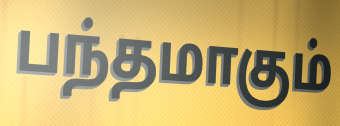
பந்தமாகும்